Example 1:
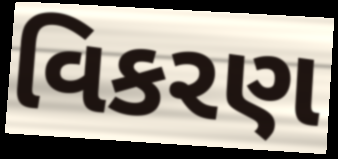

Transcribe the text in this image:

વિકરણ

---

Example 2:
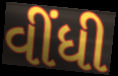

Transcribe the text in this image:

વીંધી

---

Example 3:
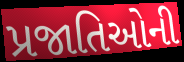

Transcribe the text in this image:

પ્રજાતિઓની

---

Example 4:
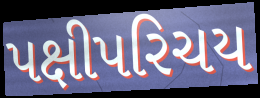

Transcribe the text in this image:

પક્ષીપરિચય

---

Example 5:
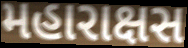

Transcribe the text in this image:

મહારાક્ષસ